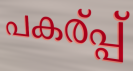
പകര്പ്പ്